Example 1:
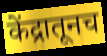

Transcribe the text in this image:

केंद्रातूनच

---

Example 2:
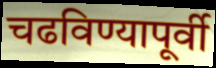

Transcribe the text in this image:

चढविण्यापूर्वी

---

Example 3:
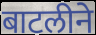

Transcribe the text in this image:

बाटलीने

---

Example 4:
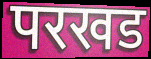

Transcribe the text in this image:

परखड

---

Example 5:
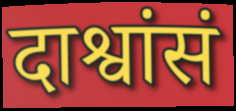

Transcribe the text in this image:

दाश्वांसं